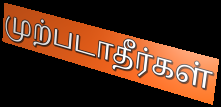
முற்படாதீர்கள்